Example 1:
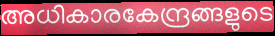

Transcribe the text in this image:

അധികാരകേന്ദ്രങ്ങളുടെ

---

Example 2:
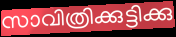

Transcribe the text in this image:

സാവിത്രിക്കുട്ടിക്കു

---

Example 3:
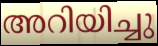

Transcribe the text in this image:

അറിയിച്ചു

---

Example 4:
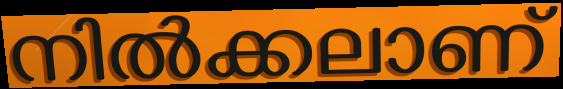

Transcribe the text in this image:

നിൽക്കലാണ്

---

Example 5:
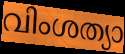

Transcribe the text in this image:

വിംശത്യാ